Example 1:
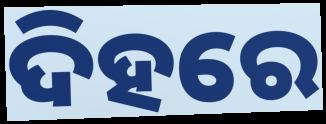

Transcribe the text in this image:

ଦିହରେ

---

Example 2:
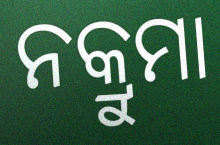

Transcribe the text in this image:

ନକ୍ରୁମା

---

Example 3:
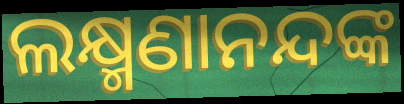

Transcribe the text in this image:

ଲକ୍ଷ୍ମଣାନନ୍ଦଙ୍କ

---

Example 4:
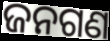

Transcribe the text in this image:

ଜନଗଣ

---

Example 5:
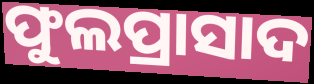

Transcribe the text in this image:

ଫୁଲପ୍ରାସାଦ